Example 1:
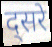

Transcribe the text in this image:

द्सरे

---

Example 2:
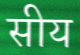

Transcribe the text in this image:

सीय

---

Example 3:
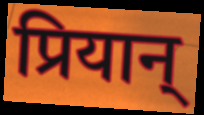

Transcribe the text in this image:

प्रियान्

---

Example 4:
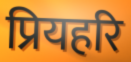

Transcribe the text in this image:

प्रियहरि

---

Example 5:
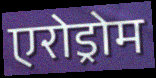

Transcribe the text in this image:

एरोड्रोम